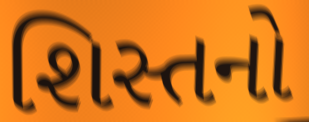
શિસ્તનો